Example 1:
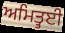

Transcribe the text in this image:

ਅਮਿਤ੍ਤਈ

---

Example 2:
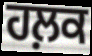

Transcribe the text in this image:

ਹਲ਼ਕ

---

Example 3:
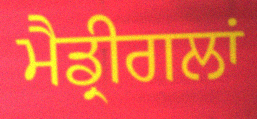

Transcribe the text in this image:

ਮੈਡ੍ਰੀਗਲਾਂ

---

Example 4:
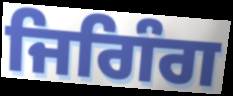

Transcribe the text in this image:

ਜਿਗਿੰਗ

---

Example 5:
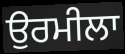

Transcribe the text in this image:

ਉਰਮੀਲਾ